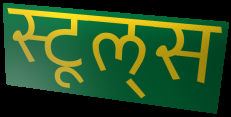
स्टूल्स